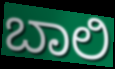
ಬಾಲಿ